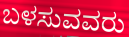
ಬಳಸುವವರು